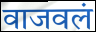
वाजवलं